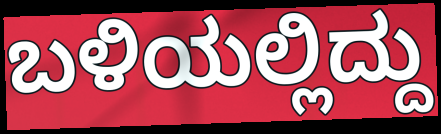
ಬಳಿಯಲ್ಲಿದ್ದು